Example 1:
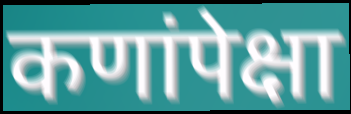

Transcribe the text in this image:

कणांपेक्षा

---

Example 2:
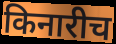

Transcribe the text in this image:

किनारीच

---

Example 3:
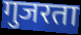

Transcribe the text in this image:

गुजरता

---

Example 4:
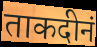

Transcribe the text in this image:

ताकदीनं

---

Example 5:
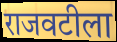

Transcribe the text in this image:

राजवटीला